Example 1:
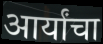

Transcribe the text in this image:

आर्यांचा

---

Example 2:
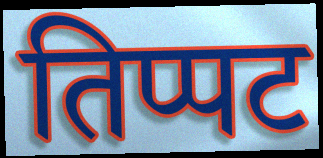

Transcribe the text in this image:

तिप्पट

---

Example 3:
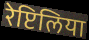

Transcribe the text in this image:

रेप्टिलिया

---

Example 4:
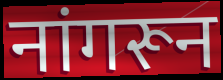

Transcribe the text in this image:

नांगरून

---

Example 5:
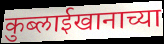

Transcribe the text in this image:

कुब्लाईखानाच्या